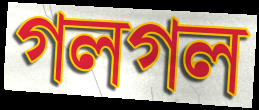
গলগল